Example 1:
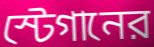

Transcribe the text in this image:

স্টেগানের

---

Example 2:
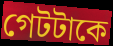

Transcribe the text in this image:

গেটটাকে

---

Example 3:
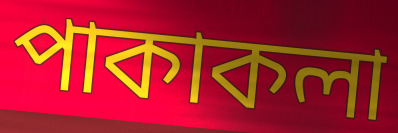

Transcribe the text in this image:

পাকাকলা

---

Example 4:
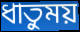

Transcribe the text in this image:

ধাতুময়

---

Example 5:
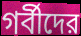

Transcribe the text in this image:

গর্বীদের